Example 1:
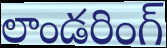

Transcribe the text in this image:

లాండరింగ్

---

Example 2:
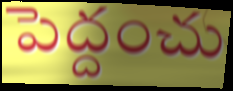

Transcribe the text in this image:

పెద్దంచు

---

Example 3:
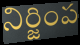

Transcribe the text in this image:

నిర్జింప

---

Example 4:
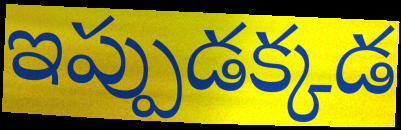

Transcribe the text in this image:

ఇప్పుడక్కడ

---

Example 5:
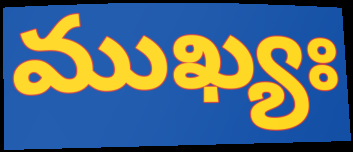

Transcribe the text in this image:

ముఖ్యః